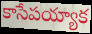
కాసేపయ్యాక